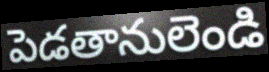
పెడతానులెండి